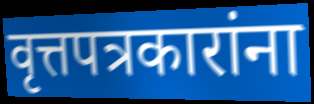
वृत्तपत्रकारांना